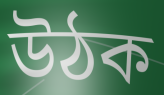
উঠক